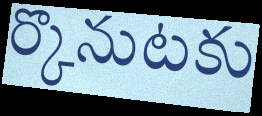
ర్కొనుటకు